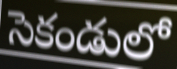
సెకండులో